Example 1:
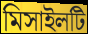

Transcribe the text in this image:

মিসাইলটি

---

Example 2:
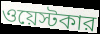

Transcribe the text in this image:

ওয়েস্টকার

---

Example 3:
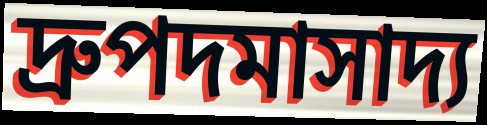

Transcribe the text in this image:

দ্রুপদমাসাদ্য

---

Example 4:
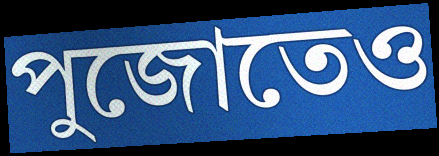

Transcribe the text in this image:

পুজোতেও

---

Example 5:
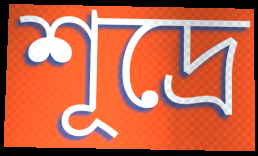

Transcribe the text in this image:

শূদ্রে